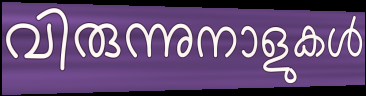
വിരുന്നുനാളുകൾ